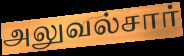
அலுவல்சார்